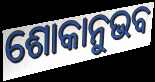
ଶୋକାନୁଭବ